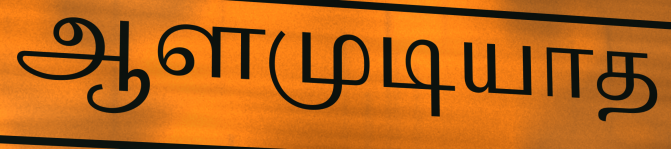
ஆளமுடியாத